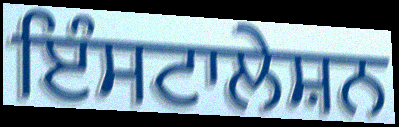
ਇੰਸਟਾਲੇਸ਼ਨ